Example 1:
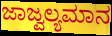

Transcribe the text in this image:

ಜಾಜ್ವಲ್ಯಮಾನ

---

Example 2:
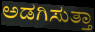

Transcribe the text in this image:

ಅಡಗಿಸುತ್ತಾ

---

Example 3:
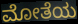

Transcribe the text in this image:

ಮೋತೆಯ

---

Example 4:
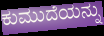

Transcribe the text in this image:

ಕುಮುದೆಯನ್ನು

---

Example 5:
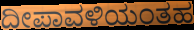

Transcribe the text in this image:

ದೀಪಾವಳಿಯಂತಹ